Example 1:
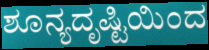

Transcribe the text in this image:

ಶೂನ್ಯದೃಷ್ಟಿಯಿಂದ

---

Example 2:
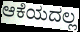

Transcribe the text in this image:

ಆಕೆಯದಲ್ಲ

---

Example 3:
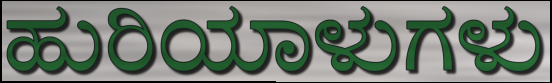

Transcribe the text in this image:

ಹುರಿಯಾಳುಗಳು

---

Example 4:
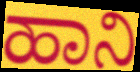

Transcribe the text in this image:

ಹಾನಿ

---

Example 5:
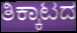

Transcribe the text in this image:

ತಿಕ್ಕಾಟದ